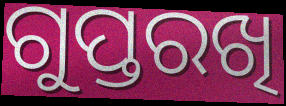
ଗୁପ୍ତରଖି